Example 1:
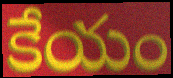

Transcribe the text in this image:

కేయం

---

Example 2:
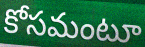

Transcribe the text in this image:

కోసమంటూ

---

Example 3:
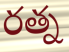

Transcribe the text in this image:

రత్న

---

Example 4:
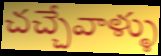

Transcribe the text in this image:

చచ్చేవాళ్ళు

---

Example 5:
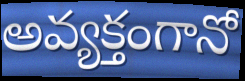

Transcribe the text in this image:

అవ్యక్తంగానో